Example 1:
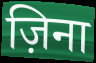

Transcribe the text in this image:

ज़िना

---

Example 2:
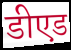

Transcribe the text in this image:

डीएड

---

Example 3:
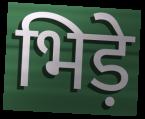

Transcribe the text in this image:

भिड़े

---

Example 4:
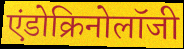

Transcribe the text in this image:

एंडोक्रिनोलॉजी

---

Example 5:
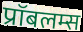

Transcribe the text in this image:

प्रॉबलम्स